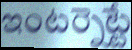
ఇంటర్నెట్టే